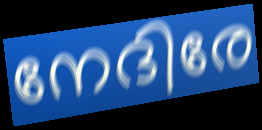
നേദിരേ